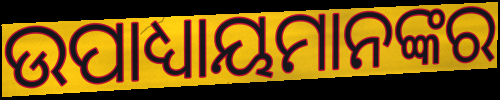
ଉପାଧ୍ୟାୟମାନଙ୍କର